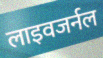
लाइवजर्नल